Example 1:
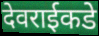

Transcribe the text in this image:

देवराईकडे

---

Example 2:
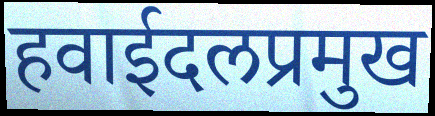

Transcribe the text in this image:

हवाईदलप्रमुख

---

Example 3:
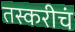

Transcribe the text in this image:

तस्करीचं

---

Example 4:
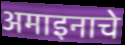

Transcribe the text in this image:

अमाइनाचे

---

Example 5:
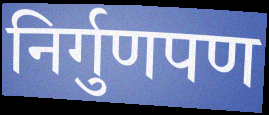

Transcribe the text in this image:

निर्गुणपण